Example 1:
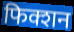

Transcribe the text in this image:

फिक्‍शन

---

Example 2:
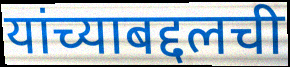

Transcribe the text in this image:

यांच्याबद्दलची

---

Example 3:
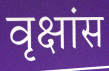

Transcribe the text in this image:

वृक्षांस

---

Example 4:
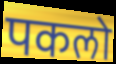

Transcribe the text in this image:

पकलो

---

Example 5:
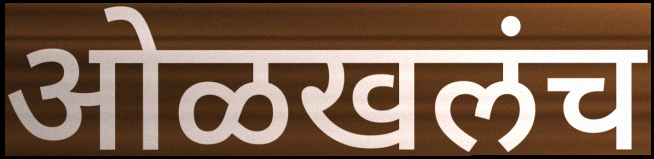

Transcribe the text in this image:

ओळखलंच